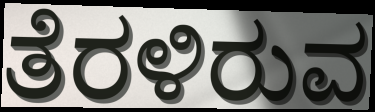
ತೆರಳಿರುವ